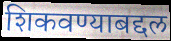
शिकवण्याबद्दल